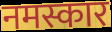
नमस्कार